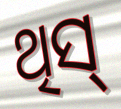
ଥିସ୍